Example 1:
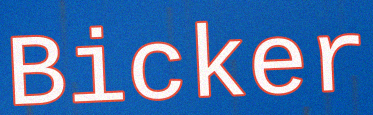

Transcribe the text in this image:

Bicker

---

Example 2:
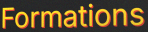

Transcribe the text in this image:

Formations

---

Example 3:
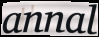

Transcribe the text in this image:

annal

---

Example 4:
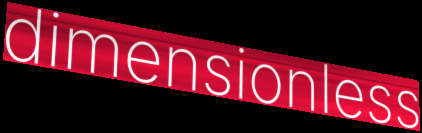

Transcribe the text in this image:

dimensionless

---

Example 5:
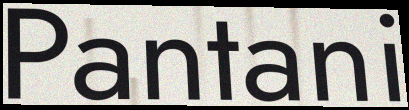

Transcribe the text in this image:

Pantani